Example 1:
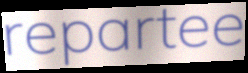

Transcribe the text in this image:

repartee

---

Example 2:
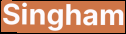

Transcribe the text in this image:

Singham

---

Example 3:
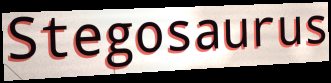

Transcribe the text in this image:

Stegosaurus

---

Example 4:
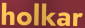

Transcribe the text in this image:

holkar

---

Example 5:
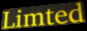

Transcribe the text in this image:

Limted